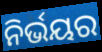
ନିର୍ଭୟର